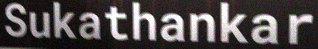
Sukathankar